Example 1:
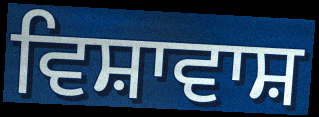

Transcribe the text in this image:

ਵਿਸ਼ਾਵਾਸ਼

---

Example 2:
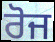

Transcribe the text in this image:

ਰੋਜ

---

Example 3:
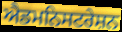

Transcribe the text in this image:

ਐਡਮਨਿਸਟਰੇਸ਼ਨ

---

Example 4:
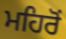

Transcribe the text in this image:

ਮਹਿਰੋਂ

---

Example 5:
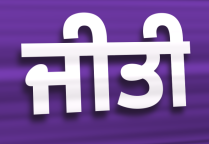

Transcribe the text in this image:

ਜੀਤੀ